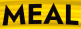
MEAL